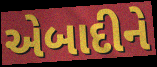
એબાદીને